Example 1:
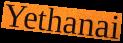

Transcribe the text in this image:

Yethanai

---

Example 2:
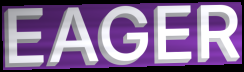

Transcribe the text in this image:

EAGER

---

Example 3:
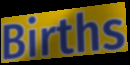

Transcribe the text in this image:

Births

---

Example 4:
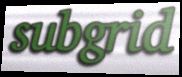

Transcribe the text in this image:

subgrid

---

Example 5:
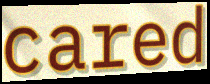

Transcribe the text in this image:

cared